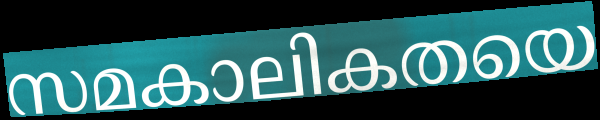
സമകാലികതയെ